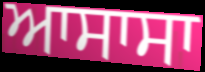
ਆਸਾਸਾ